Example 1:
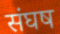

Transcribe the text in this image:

संघष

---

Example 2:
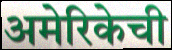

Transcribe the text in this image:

अमेरिकेची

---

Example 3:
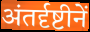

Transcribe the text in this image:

अंतर्दृष्टीनें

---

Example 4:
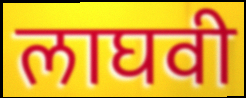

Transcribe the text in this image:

लाघवी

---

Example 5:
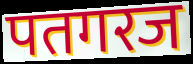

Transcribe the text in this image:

पतगरज